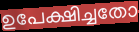
ഉപേക്ഷിച്ചതോ